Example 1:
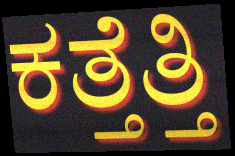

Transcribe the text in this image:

ಕತ್ತೆತ್ತಿ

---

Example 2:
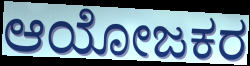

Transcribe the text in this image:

ಆಯೋಜಕರ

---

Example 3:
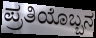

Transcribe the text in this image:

ಪ್ರತಿಯೊಬ್ಬನ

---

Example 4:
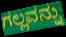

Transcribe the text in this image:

ಗಲ್ಲವನ್ನು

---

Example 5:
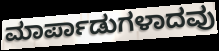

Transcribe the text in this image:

ಮಾರ್ಪಾಡುಗಳಾದವು